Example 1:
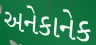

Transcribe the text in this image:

અનેકાનેક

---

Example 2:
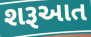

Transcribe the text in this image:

શરૂઆત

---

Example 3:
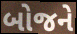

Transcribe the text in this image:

બોજને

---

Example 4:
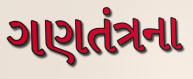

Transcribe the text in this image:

ગણતંત્રના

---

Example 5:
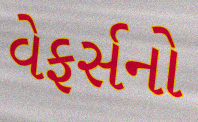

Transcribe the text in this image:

વેફર્સનો